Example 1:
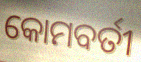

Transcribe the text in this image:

କୋମବର୍ତୀ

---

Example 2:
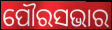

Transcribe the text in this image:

ପୌରସଭାର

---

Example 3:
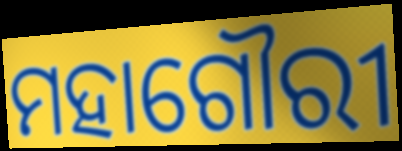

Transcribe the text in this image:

ମହାଗୌରୀ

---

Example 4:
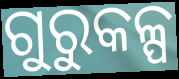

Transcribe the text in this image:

ଗୁରୁକଳ୍ପ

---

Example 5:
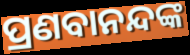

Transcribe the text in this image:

ପ୍ରଣବାନନ୍ଦଙ୍କ